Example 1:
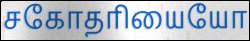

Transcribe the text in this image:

சகோதரியையோ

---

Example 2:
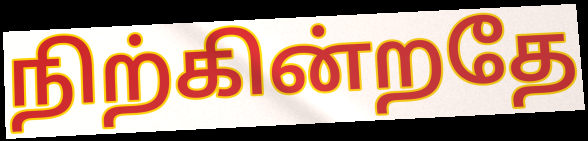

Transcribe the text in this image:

நிற்கின்றதே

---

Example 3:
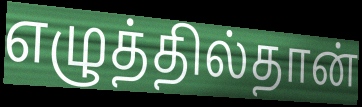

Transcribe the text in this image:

எழுத்தில்தான்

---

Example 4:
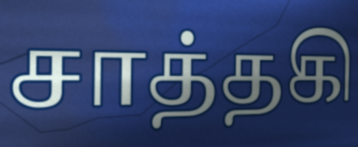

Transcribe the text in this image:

சாத்தகி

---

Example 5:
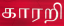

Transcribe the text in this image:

காரறி